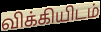
விக்கியிடம்